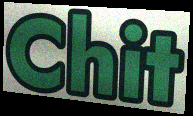
Chit